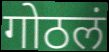
गोठलं